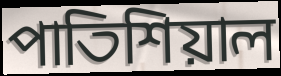
পাতিশিয়াল